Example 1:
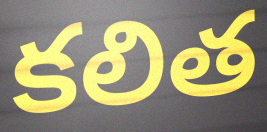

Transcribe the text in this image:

కలిత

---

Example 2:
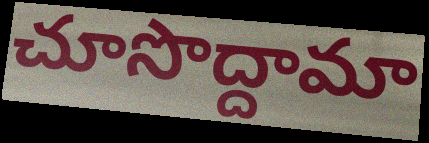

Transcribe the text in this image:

చూసొద్దామా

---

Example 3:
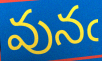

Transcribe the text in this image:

వునఁ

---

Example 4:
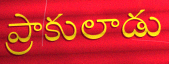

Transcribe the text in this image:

ప్రాకులాడు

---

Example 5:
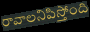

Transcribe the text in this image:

రావాలనిపిస్తోంది